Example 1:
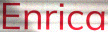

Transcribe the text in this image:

Enrica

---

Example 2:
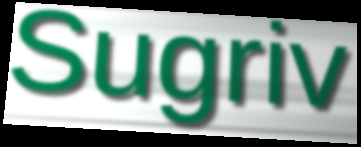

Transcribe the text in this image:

Sugriv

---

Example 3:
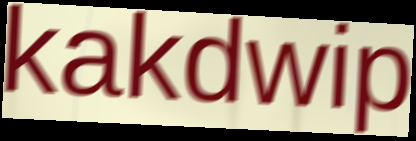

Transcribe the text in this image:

kakdwip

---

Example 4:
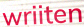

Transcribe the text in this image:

wriiten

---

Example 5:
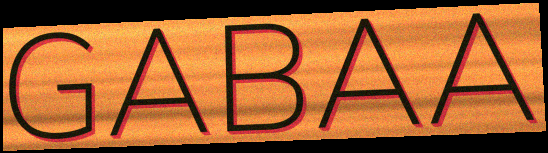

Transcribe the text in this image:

GABAA